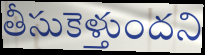
తీసుకెళ్తుందని